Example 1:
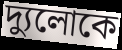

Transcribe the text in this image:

দ্যুলোকে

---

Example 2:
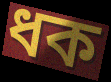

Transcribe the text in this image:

ধক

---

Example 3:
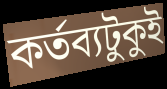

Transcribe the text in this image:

কর্তব্যটুকুই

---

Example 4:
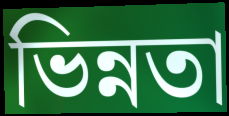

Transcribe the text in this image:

ভিন্নতা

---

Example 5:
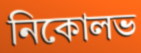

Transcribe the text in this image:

নিকোলভ